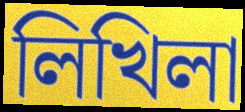
লিখিলা